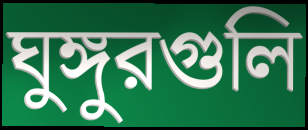
ঘুঙ্গুরগুলি